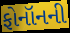
ફોનૉનની